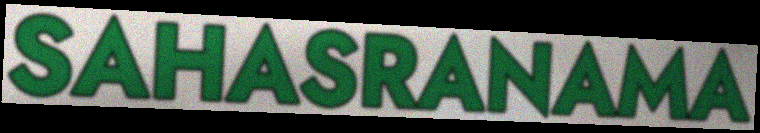
SAHASRANAMA